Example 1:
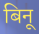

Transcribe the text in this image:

बिनू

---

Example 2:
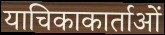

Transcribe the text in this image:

याचिकाकार्ताओं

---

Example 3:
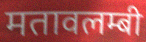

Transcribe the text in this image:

मतावलम्बी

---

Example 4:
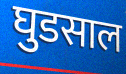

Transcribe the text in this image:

घुडसाल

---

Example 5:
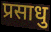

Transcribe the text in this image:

प्रसाधु